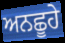
ਅਨਛੂਹੇ